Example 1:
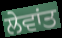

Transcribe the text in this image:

ਲੇਵਾਂਤ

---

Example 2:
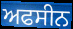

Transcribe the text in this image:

ਅਫਸੀਨ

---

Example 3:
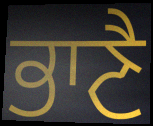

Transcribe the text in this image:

ਭਾਣੈ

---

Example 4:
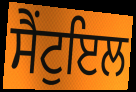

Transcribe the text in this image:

ਸੈਂਟੁਇਲ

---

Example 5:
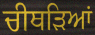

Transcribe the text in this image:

ਚੀਥੜਿਆਂ